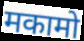
मकामो